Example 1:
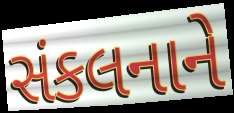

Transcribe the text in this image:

સંકલનાને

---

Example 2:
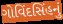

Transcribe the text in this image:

ગોવિંદસિંહનું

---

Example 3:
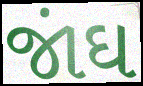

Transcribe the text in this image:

જાંઘ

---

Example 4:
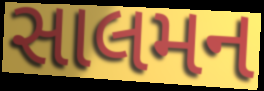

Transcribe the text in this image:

સાલમન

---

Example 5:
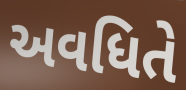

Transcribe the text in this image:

અવધિતે